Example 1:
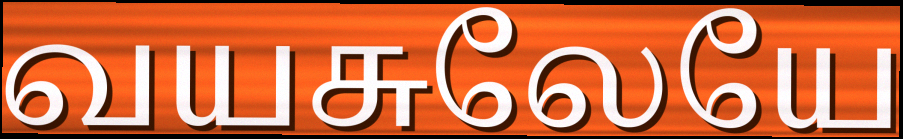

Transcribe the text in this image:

வயசுலேயே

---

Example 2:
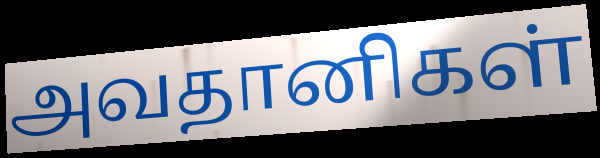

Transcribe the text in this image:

அவதானிகள்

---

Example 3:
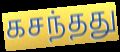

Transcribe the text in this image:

கசந்தது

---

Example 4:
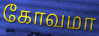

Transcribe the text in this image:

கோவமா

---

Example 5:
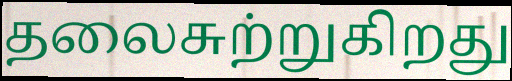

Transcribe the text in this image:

தலைசுற்றுகிறது